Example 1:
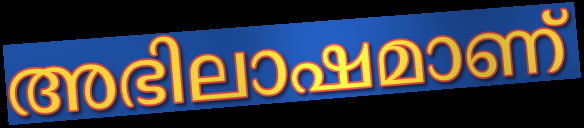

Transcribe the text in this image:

അഭിലാഷമാണ്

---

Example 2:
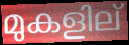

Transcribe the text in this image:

മുകളില്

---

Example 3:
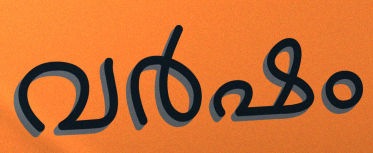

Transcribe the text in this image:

വർഷം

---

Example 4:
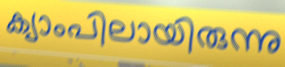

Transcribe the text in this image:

ക്യാംപിലായിരുന്നു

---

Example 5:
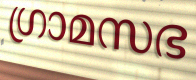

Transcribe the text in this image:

ഗ്രാമസഭ